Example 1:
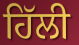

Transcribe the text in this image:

ਹਿੱਲੀ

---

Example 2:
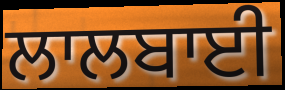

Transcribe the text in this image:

ਲਾਲਬਾਈ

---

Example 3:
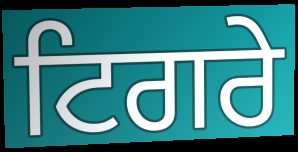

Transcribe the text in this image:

ਟਿਗਰੇ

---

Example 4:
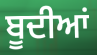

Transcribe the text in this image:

ਬੂਦੀਆਂ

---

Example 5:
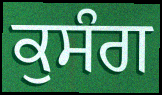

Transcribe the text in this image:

ਕੁਸੰਗ